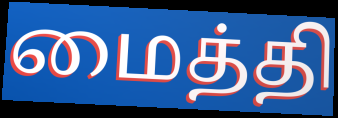
மைத்தி